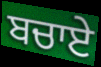
ਬਚਾਏ